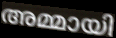
അമ്മായി